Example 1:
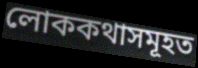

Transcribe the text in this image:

লোককথাসমূহত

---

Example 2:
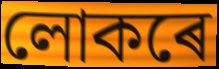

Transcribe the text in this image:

লোকৰে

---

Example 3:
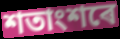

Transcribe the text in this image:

শতাংশৰে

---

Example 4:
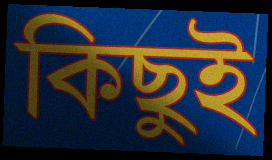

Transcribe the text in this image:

কিছুই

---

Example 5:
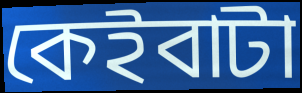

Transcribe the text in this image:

কেইবাটা